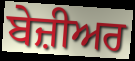
ਬੇਜ਼ੀਅਰ